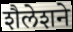
शैलेशने